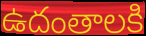
ఉదంతాలకి